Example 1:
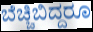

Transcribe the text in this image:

ಬೆಚ್ಚಿಬಿದ್ದರೂ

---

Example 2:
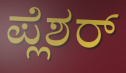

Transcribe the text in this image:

ಪ್ಲೆಶರ್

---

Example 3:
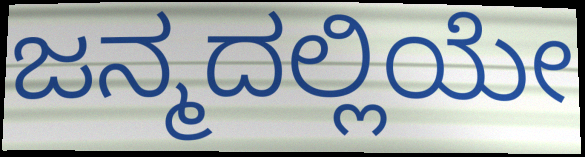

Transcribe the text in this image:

ಜನ್ಮದಲ್ಲಿಯೇ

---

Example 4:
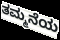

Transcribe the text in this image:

ತಮ್ಮನೆಯ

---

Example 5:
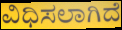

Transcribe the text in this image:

ವಿಧಿಸಲಾಗಿದೆ